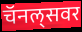
चॅनल्सवर